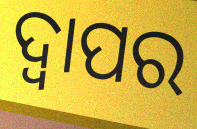
ଦ୍ୱାପର